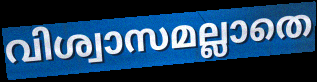
വിശ്വാസമല്ലാതെ